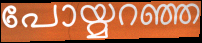
പോയ്മറഞ്ഞ